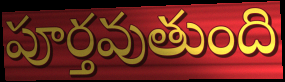
పూర్తవుతుంది